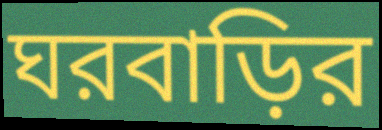
ঘরবাড়ির